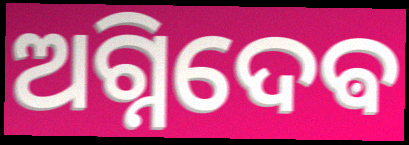
ଅଗ୍ନିଦେଵ